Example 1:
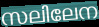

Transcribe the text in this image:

സലിലേന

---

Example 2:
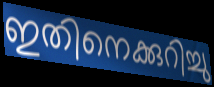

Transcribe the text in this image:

ഇതിനെക്കുറിച്ചു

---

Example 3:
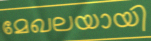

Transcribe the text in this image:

മേഖലയായി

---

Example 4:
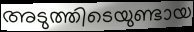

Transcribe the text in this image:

അടുത്തിടെയുണ്ടായ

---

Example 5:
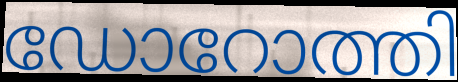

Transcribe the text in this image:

ഡോറോത്തി